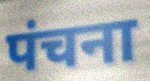
पंचना